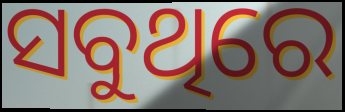
ସବୁଥିରେ